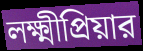
লক্ষ্মীপ্রিয়ার